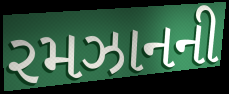
રમઝાનની